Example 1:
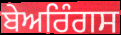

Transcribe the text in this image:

ਬੇਅਰਿੰਗਸ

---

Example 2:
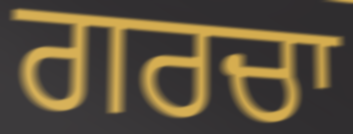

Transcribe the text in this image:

ਗਰਚਾ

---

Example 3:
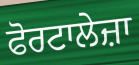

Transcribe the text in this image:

ਫੋਰਟਾਲੇਜ਼ਾ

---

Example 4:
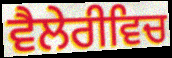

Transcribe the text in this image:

ਵੈਲੇਰੀਵਿਚ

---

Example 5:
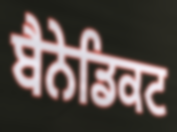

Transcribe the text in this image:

ਬੈਨੇਡਿਕਟ